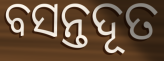
ବସନ୍ତଦୂତ